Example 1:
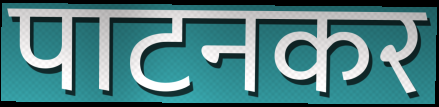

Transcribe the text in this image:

पाटनकर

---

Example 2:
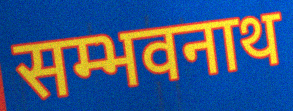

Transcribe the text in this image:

सम्भवनाथ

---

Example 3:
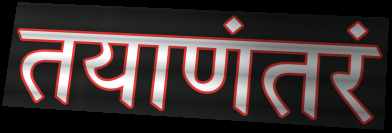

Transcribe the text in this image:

तयाणंतरं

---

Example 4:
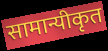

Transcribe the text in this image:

सामान्यीकृत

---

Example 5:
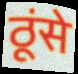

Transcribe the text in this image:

ठूंसे